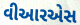
વીઆરએસ